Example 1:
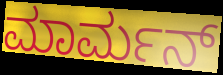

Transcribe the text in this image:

ಮಾರ್ಮನ್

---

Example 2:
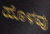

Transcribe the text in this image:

ಹೊಳವು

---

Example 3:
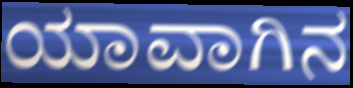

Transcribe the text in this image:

ಯಾವಾಗಿನ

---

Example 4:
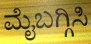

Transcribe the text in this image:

ಮೈಬಗ್ಗಿಸಿ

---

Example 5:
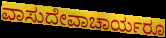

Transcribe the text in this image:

ವಾಸುದೇವಾಚಾರ್ಯರೂ